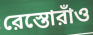
রেস্তোরাঁও